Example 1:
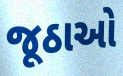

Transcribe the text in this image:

જૂઠાઓ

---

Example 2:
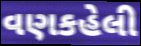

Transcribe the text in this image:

વણકહેલી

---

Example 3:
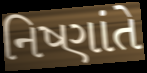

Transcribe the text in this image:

નિષ્ણાંતે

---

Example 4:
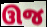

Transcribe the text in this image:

ઊજ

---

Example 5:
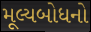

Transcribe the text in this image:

મૂલ્યબોધનો